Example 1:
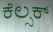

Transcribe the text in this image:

ಕೆಲ್ಸಕ್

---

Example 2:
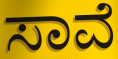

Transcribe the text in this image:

ಸಾವೆ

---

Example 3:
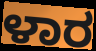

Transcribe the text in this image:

ಳಾರ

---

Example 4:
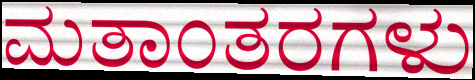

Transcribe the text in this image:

ಮತಾಂತರಗಳು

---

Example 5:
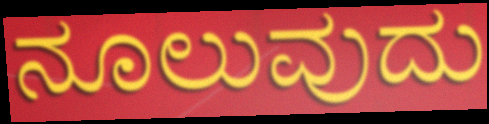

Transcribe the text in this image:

ನೂಲುವುದು